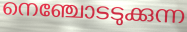
നെഞ്ചോടടുക്കുന്ന